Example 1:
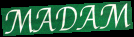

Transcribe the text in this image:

MADAM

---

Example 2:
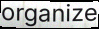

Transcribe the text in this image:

organize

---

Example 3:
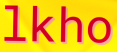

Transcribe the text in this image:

lkho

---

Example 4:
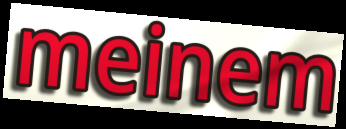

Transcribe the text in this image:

meinem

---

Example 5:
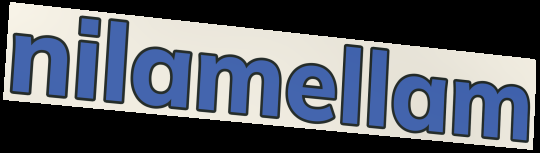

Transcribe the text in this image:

nilamellam